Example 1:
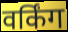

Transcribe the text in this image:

वर्किंग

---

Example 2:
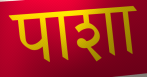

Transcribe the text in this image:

पाशा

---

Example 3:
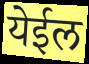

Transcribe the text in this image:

येईल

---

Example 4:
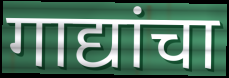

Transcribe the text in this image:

गाद्यांचा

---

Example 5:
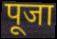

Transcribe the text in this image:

पूजा